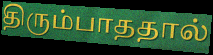
திரும்பாததால்